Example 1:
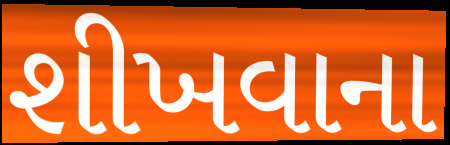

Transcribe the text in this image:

શીખવાના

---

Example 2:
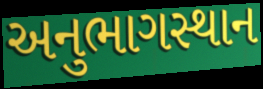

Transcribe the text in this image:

અનુભાગસ્થાન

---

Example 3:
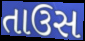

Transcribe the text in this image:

તાઉસ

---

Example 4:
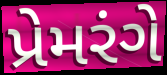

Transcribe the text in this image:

પ્રેમરંગે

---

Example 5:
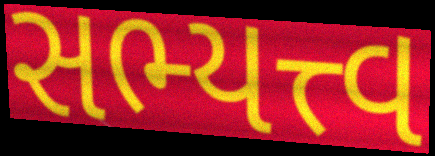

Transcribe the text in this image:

સભ્યત્ત્વ